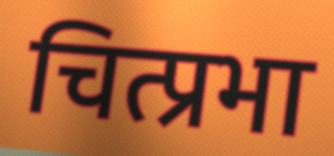
चित्प्रभा